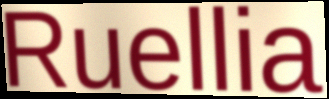
Ruellia